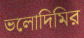
ভলোদিমির